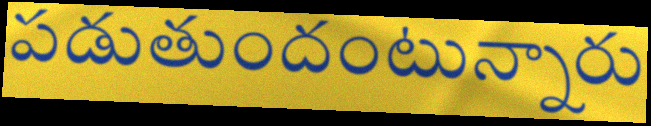
పడుతుందంటున్నారు